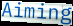
Aiming